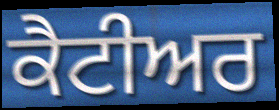
ਕੈਟੀਅਰ